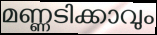
മണ്ണടിക്കാവും